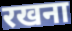
रखना